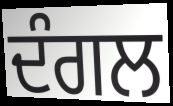
ਦੰਗਲ